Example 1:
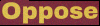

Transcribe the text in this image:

Oppose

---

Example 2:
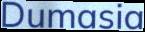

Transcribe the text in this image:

Dumasia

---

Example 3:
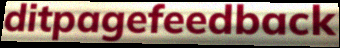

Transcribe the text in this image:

ditpagefeedback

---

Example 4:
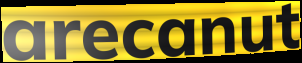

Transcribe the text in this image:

arecanut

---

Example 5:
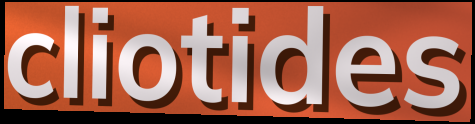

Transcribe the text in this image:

cliotides